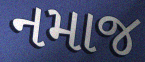
નમાજ